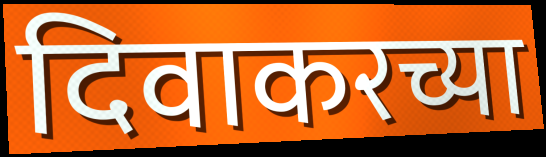
दिवाकरच्या